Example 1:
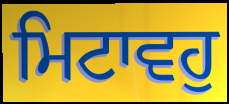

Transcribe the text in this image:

ਮਿਟਾਵਹੁ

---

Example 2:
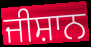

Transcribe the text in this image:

ਜੀਸ਼ਾਨ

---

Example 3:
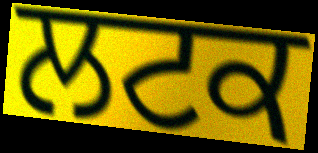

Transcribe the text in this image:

ਲਟਕ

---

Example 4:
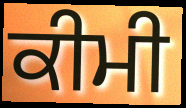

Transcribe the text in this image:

ਕੀਮੀ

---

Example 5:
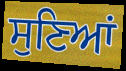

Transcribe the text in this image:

ਸੁਣਿਆਂ